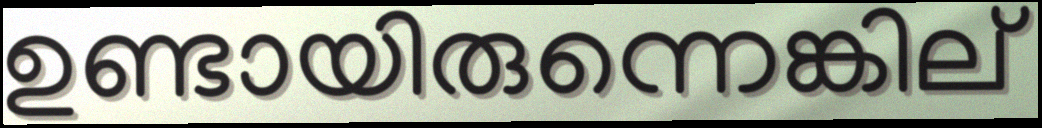
ഉണ്ടായിരുന്നെങ്കില്